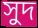
সুদ